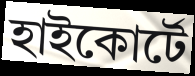
হাইকোর্টে